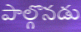
పాల్గొనడు